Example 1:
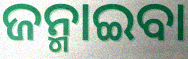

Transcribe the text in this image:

ଜନ୍ମାଇବା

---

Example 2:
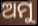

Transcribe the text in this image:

ଅମୁ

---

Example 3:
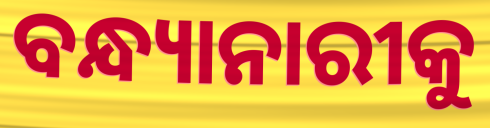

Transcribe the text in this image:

ବନ୍ଧ୍ୟାନାରୀକୁ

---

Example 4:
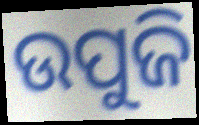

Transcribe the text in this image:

ଉପୁଜି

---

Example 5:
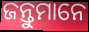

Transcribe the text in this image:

ଜନ୍ତୁମାନେ